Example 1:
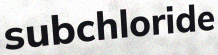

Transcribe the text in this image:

subchloride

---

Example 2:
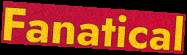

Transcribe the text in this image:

Fanatical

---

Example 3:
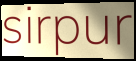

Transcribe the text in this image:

sirpur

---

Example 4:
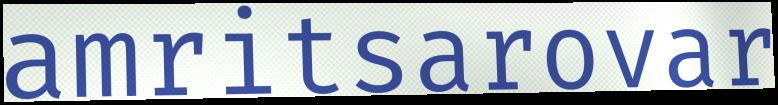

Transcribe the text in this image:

amritsarovar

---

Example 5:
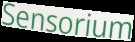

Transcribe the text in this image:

Sensorium